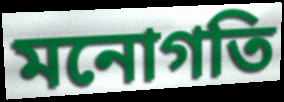
মনোগতি